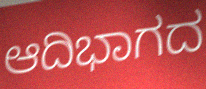
ಆದಿಭಾಗದ